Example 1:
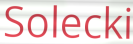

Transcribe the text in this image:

Solecki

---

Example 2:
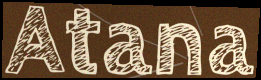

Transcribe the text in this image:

Atana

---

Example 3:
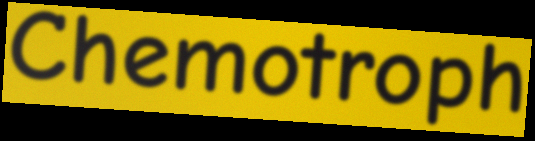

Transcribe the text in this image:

Chemotroph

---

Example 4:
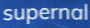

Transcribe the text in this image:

supernal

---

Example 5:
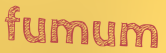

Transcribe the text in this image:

fumum